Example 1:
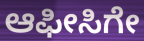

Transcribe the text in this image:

ಆಫೀಸಿಗೇ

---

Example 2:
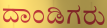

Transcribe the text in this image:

ದಾಂಡಿಗರು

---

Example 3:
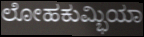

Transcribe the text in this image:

ಲೋಹಕುಮ್ಭಿಯಾ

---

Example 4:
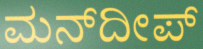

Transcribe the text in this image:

ಮನ್‍ದೀಪ್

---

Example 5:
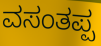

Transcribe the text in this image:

ವಸಂತಪ್ಪ